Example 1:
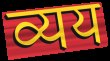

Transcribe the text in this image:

व्यय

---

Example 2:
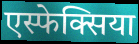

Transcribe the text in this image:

एस्फेक्सिया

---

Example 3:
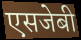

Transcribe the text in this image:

एसजेबी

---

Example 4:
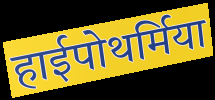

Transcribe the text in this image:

हाईपोथर्मिया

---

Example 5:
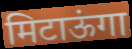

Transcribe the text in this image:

मिटाऊंगा